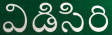
విడిసిరి